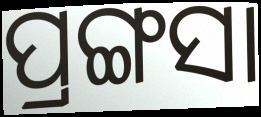
ପ୍ରଙ୍ଗସା